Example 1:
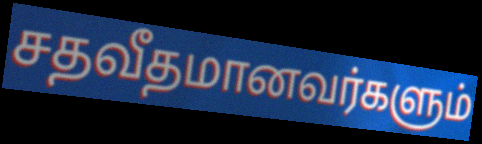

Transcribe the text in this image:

சதவீதமானவர்களும்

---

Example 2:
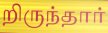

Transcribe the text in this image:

றிருந்தார்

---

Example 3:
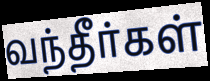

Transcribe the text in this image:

வந்தீர்கள்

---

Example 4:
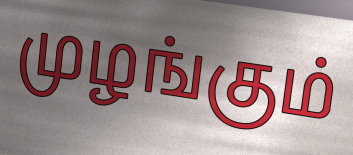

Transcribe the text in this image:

முழங்கும்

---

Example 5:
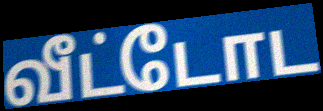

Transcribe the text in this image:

வீட்டோட